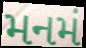
મનમં